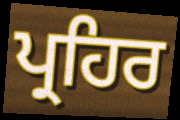
ਪ੍ਰਹਿਰ